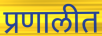
प्रणालीत